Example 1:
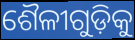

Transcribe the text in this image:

ଶୈଳୀଗୁଡ଼ିକୁ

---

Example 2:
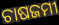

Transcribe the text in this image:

ଚାଷଜମୀ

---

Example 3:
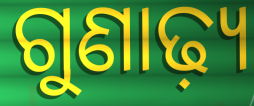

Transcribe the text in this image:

ଗୁଣାଢ଼୍ୟ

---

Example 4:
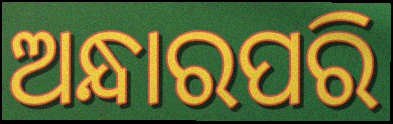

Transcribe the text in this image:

ଅନ୍ଧାରପରି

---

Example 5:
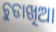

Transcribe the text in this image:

ଚୁଡାଖିଆ